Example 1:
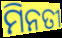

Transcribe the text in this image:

ମିନତୀ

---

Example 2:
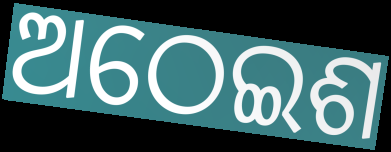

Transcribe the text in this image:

ଅଠେଇଶ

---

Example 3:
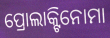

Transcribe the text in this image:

ପ୍ରୋଲାକ୍ଟିନୋମା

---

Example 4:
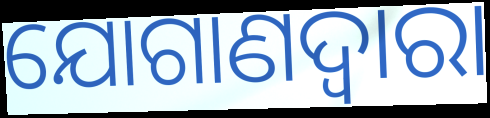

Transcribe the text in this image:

ଯୋଗାଣଦ୍ଵାରା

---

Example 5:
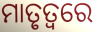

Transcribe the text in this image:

ମାତୃତ୍ୱରେ